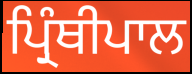
ਪ੍ਰਿੰਥੀਪਾਲ